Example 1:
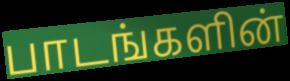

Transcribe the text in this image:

பாடங்களின்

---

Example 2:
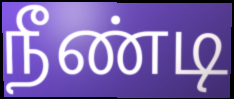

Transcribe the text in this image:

நீண்டி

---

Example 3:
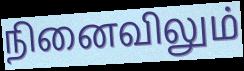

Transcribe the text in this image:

நினைவிலும்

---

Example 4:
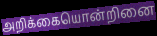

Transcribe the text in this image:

அறிக்கையொன்றினை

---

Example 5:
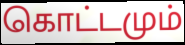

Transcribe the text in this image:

கொட்டமும்